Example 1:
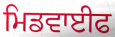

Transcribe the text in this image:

ਮਿਡਵਾਈਫ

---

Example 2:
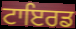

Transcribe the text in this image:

ਟਾਇਰਡ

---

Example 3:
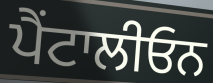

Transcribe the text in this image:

ਪੈਂਟਾਲੀਓਨ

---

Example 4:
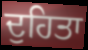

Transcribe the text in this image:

ਦੁਹਿਤਾ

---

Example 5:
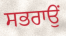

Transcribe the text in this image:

ਸਭਰਾਉਂ